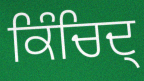
ਕਿੰਚਿਦ੍